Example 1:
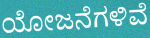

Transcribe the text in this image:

ಯೋಜನೆಗಳಿವೆ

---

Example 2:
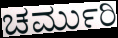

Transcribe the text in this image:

ಚರ್ಮುರಿ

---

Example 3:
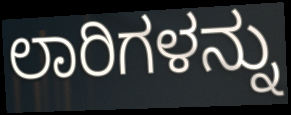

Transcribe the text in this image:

ಲಾರಿಗಳನ್ನು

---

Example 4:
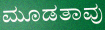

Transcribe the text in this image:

ಮೂಡತಾವು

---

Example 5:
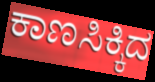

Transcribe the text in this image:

ಕಾಣಸಿಕ್ಕಿದ